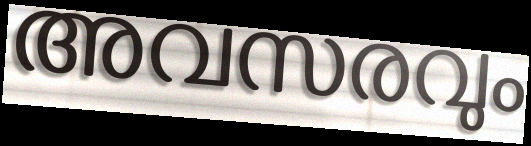
അവസരവും